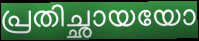
പ്രതിച്ഛായയോ